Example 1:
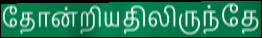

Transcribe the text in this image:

தோன்றியதிலிருந்தே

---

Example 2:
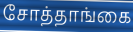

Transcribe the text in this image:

சோத்தாங்கை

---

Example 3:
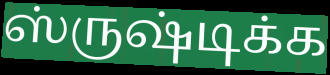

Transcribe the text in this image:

ஸ்ருஷ்டிக்க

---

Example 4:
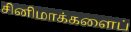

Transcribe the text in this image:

சினிமாக்களைப்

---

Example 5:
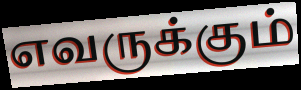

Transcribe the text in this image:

எவருக்கும்